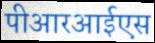
पीआरआईएस